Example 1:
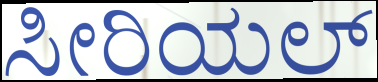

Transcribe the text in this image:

ಸೀರಿಯಲ್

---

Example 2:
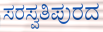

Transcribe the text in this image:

ಸರಸ್ವತಿಪುರದ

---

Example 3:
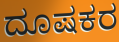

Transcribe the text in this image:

ದೂಷಕರ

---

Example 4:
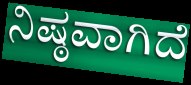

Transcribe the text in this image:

ನಿಷ್ಠವಾಗಿದೆ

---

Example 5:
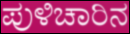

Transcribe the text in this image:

ಪುಳಿಚಾರಿನ